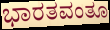
ಭಾರತವಂತೂ